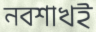
নবশাখই